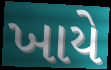
ખાયે